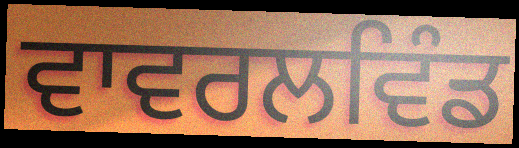
ਵਾਵਰਲਵਿੰਡ